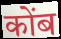
कोंब